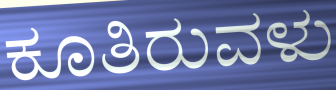
ಕೂತಿರುವಳು